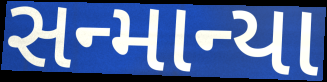
સન્માન્યા